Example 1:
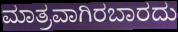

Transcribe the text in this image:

ಮಾತ್ರವಾಗಿರಬಾರದು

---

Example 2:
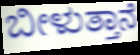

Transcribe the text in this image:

ಬೀಳುತ್ತಾನೆ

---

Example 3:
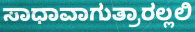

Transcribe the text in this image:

ಸಾಧಾವಾಗುತ್ರಾರಲ್ಲಲಿ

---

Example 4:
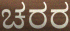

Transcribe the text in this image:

ಚರರ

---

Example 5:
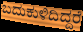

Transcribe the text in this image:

ಬದುಕುಳಿದಿದ್ದರೆ